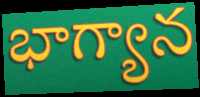
భాగ్యాన